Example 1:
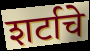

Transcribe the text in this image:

शर्टाचे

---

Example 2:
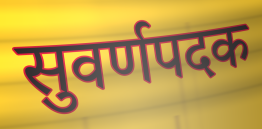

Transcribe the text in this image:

सुवर्णपदक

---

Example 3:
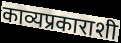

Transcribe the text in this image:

काव्यप्रकाराशी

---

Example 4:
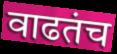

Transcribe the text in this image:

वाढतंच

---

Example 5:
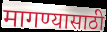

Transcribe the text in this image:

मागण्यासाठी